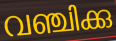
വഞ്ചിക്കു